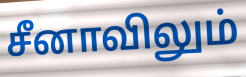
சீனாவிலும்